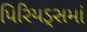
પિરિયડ્સમાં